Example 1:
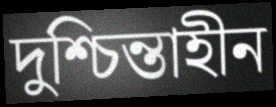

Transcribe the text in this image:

দুশ্চিন্তাহীন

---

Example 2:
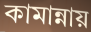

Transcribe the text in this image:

কামান্নায়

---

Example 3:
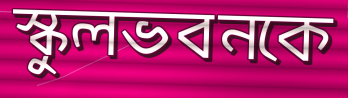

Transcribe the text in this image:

স্কুলভবনকে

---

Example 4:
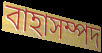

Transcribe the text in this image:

বাহাসম্পদ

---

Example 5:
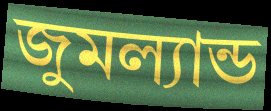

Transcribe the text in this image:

জুমল্যান্ড